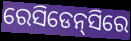
ରେସିଡେନ୍‌ସିରେ